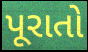
પૂરાતો